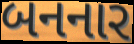
બનનાર